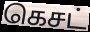
கெசட்